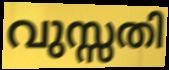
വുസ്സതി